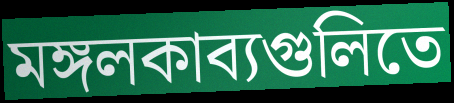
মঙ্গলকাব্যগুলিতে